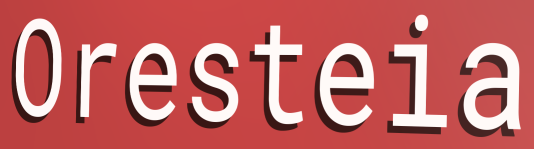
Oresteia